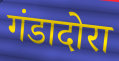
गंडादोरा